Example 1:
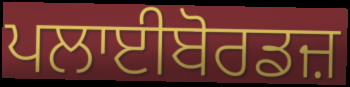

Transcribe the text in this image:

ਪਲਾਈਬੋਰਡਜ਼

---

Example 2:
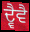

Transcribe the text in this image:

ਦ੍ਵੈਵੈ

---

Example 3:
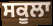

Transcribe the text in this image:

ਸਕੂਲਾ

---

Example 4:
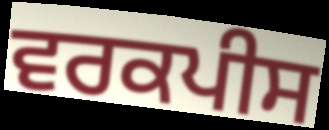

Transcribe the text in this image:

ਵਰਕਪੀਸ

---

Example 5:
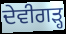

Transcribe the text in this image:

ਦੇਵੀਗੜ੍ਹ